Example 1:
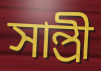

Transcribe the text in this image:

সান্ত্রী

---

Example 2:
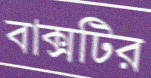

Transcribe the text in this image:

বাক্সটির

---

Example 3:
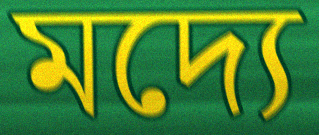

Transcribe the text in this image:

মদ্যে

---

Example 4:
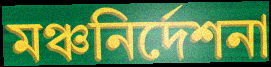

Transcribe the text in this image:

মঞ্চনির্দেশনা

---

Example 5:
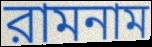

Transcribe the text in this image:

রামনাম